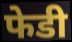
फेडी